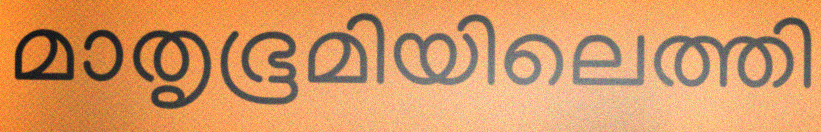
മാതൃഭൂമിയിലെത്തി